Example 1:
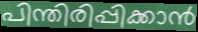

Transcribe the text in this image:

പിന്തിരിപ്പിക്കാൻ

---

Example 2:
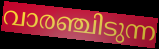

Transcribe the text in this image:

വാരഞ്ചിടുന്ന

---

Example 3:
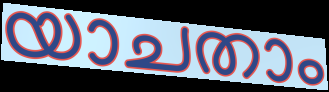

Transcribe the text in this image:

യാചതാം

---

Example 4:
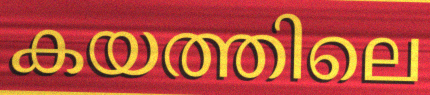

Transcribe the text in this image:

കയത്തിലെ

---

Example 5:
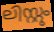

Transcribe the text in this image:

ലിസ്റ്റും